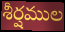
శీర్షముల